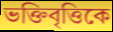
ভক্তিবৃত্তিকে